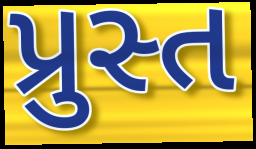
પ્રુસ્ત